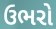
ઉભરો